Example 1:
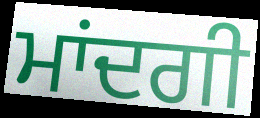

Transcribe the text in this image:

ਮਾਂਦਗੀ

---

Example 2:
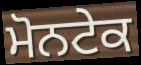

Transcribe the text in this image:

ਮੋਨਟੇਕ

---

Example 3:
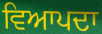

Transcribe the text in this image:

ਵਿਆਪਦਾ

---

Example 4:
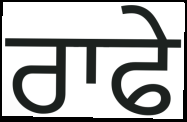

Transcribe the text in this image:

ਰਾਫੇ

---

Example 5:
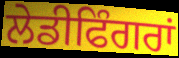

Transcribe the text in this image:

ਲੇਡੀਫਿੰਗਰਾਂ